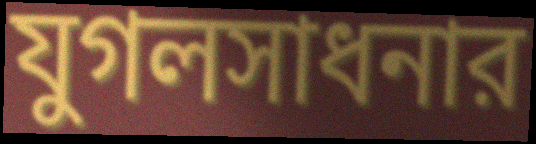
যুগলসাধনার